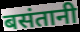
बसंतानी